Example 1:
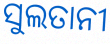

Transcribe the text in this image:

ସୁଲତାନୀ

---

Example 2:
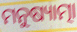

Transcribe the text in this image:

ମନୁଷ୍ୟାତ୍ମା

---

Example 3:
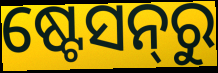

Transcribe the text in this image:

ଷ୍ଟେସନ୍‌ରୁ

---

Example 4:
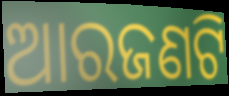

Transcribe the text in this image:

ଆରଜଣଟି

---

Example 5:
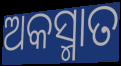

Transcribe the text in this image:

ଅକସ୍ମାତ